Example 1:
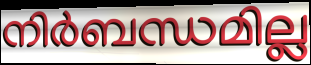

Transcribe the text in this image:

നിർബന്ധമില്ല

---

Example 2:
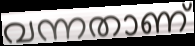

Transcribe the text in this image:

വന്നതാണ്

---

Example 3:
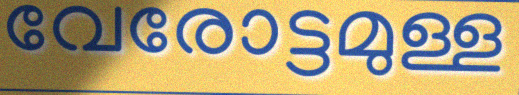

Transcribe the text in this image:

വേരോട്ടമുള്ള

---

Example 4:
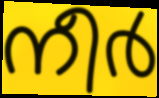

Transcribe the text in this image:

നീർ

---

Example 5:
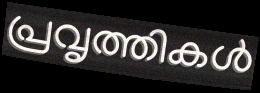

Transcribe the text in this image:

പ്രവൃത്തികൾ